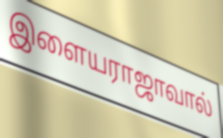
இளையராஜாவால்